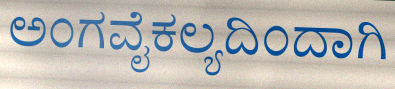
ಅಂಗವೈಕಲ್ಯದಿಂದಾಗಿ